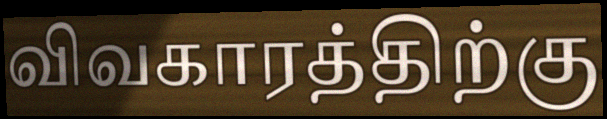
விவகாரத்திற்கு